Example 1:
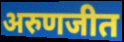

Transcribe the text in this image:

अरुणजीत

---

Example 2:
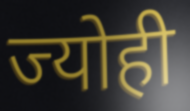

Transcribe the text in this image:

ज्योही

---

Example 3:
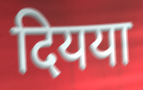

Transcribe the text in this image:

दियया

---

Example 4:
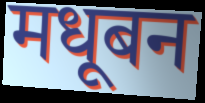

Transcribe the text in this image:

मधूबन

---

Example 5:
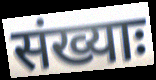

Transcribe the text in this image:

संख्याः